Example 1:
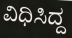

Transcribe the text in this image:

ವಿಧಿಸಿದ್ದ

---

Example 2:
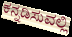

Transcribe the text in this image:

ಕನ್ನಡಿಸುವಲ್ಲಿ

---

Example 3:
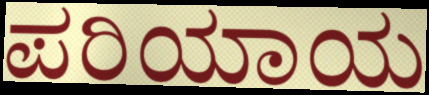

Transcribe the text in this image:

ಪರಿಯಾಯ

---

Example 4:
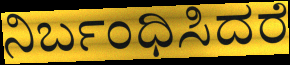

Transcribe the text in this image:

ನಿರ್ಬಂಧಿಸಿದರೆ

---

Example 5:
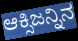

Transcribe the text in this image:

ಆಕ್ಸಿಜನ್ನಿನ